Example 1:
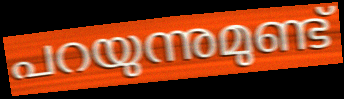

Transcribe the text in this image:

പറയുന്നുമുണ്ട്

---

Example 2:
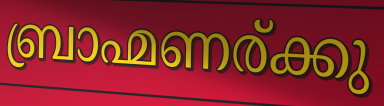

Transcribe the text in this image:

ബ്രാഹ്മണര്ക്കു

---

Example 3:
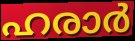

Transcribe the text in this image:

ഹരാർ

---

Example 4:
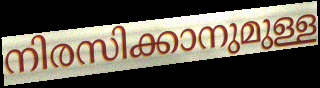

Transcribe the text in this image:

നിരസിക്കാനുമുള്ള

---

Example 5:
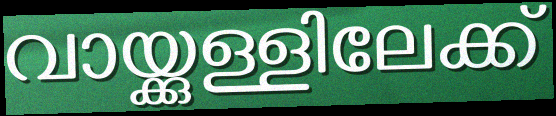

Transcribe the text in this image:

വായ്ക്കുള്ളിലേക്ക്